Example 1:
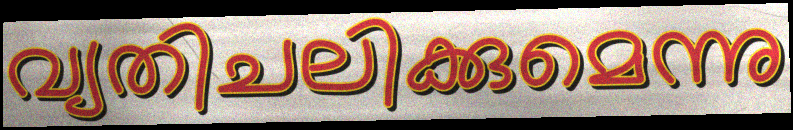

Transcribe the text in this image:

വ്യതിചലിക്കുമെന്നു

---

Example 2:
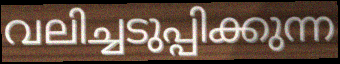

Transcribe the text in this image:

വലിച്ചടുപ്പിക്കുന്ന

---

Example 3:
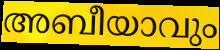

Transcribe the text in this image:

അബീയാവും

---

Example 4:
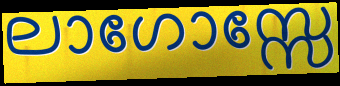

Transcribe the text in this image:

ലാഗോസ്സേ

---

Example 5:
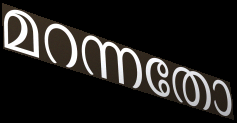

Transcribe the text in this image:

മറന്നതോ